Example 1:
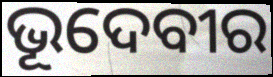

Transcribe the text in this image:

ଭୂଦେବୀର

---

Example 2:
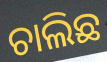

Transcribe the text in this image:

ଚାଲିଛ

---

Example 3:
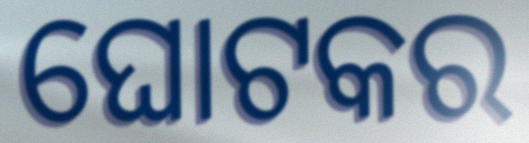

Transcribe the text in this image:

ଘୋଟକର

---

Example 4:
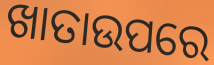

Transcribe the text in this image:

ଖାତାଉପରେ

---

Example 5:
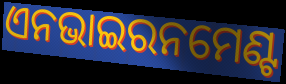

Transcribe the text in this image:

ଏନଭାଇରନମେଣ୍ଟ